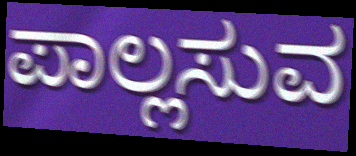
ಪಾಲ್ಲಸುವ